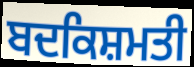
ਬਦਕਿਸ਼ਮਤੀ